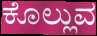
ಕೊಲ್ಲುವ